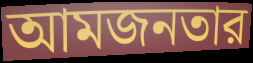
আমজনতার